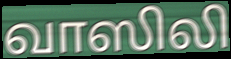
வாஸிலி